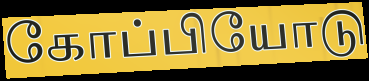
கோப்பியோடு